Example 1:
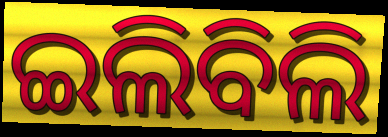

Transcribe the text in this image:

ଇଲିବିଲି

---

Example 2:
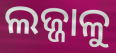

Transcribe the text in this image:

ଲଜ୍ଜାଳୁ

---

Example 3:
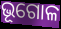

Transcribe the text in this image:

ଭୂଗୋଳ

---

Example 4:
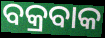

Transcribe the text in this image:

ବକ୍ରବାକ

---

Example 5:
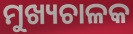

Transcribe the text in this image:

ମୁଖ୍ୟଚାଳକ